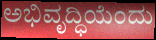
ಅಭಿವೃದ್ಧಿಯೆಂದು